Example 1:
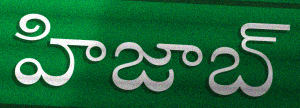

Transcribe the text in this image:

హిజాబ్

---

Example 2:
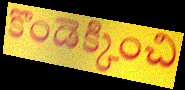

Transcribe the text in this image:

కొండెక్కించి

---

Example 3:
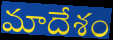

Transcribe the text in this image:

మాదేశం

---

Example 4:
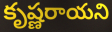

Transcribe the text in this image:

కృష్ణరాయని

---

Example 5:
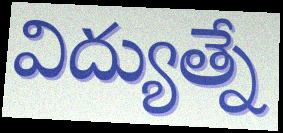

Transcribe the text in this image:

విద్యుత్నే